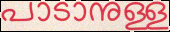
പാടാനുള്ള